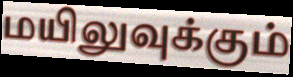
மயிலுவுக்கும்